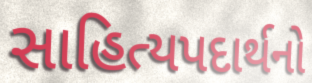
સાહિત્યપદાર્થનો